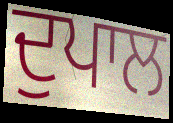
ਦੁਪਾਲ